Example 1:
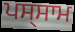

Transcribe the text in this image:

ਪਸ੍ਸਾਮ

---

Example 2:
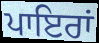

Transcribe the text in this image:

ਪਾਇਰਾਂ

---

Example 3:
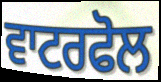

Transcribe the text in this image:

ਵਾਟਰਫੋਲ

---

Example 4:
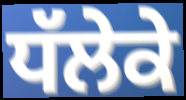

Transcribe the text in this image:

ਧੱਲੇਕੇ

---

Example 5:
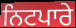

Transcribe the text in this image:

ਨਿਟਪਾਰੇ